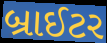
બ્રાઈટર